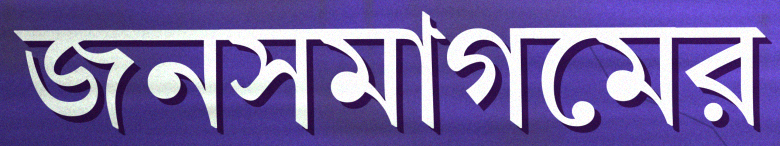
জনসমাগমের